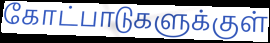
கோட்பாடுகளுக்குள்